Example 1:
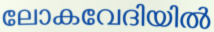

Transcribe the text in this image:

ലോകവേദിയിൽ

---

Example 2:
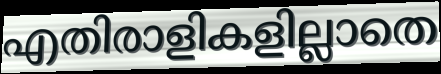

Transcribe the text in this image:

എതിരാളികളില്ലാതെ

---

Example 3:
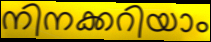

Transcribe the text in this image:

നിനക്കറിയാം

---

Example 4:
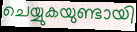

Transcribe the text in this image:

ചെയ്യുകയുണ്ടായി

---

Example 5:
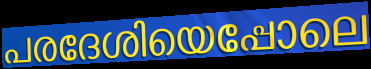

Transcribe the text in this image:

പരദേശിയെപ്പോലെ